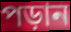
পড়ান